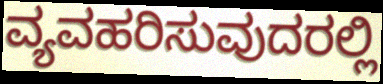
ವ್ಯವಹರಿಸುವುದರಲ್ಲಿ